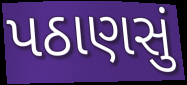
પઠાણસું